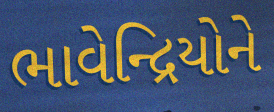
ભાવેન્દ્રિયોને